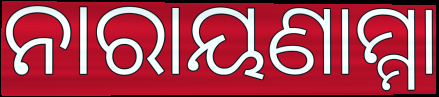
ନାରାୟଣାମ୍ମା